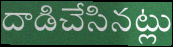
దాడిచేసినట్లు